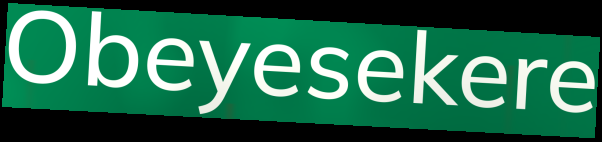
Obeyesekere